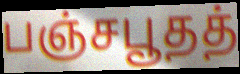
பஞ்சபூதத்